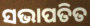
ସଭାପତିତ